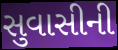
સુવાસીની